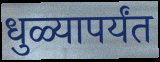
धुळ्यापर्यंत